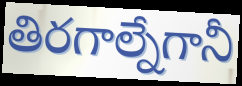
తిరగాల్నేగానీ